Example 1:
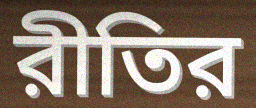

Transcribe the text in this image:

রীতির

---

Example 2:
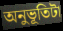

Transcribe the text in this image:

অনুভূতিটা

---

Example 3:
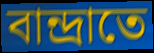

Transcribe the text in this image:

বান্দ্রাতে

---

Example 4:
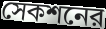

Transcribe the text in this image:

সেকশনের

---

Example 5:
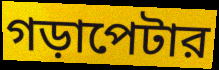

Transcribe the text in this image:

গড়াপেটার